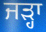
ਜੜ੍ਹਾ